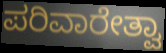
ಪರಿವಾರೇತ್ವಾ